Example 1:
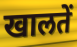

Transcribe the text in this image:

खालतें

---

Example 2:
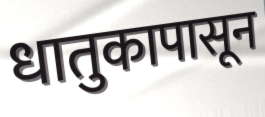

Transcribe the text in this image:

धातुकापासून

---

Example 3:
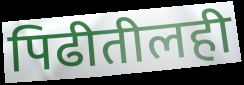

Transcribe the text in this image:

पिढीतीलही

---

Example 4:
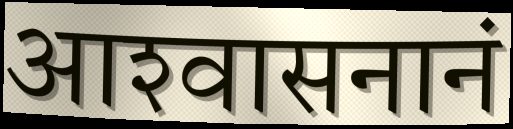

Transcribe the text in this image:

आश्वासनानं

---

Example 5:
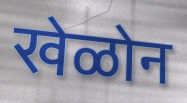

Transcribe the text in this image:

खेळोन